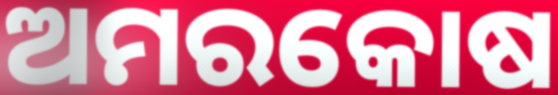
ଅମରକୋଷ